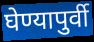
घेण्यापुर्वी